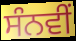
ਸੰਨਵੀਂ